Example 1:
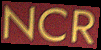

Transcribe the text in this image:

NCR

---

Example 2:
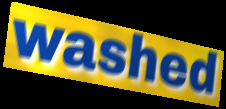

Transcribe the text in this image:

washed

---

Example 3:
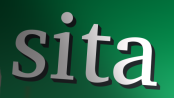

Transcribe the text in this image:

sita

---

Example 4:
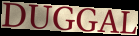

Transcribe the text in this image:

DUGGAL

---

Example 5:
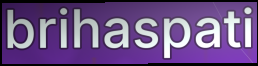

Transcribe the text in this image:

brihaspati